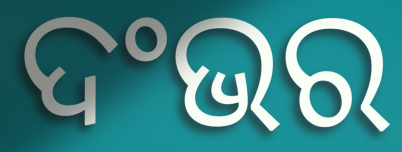
ଦଂଭର